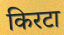
किरटा